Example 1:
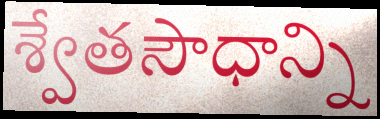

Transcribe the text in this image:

శ్వేతసౌధాన్ని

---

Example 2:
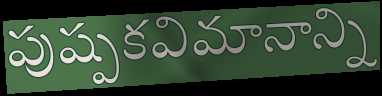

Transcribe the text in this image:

పుష్పకవిమానాన్ని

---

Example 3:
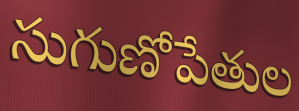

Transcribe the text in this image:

సుగుణోపేతుల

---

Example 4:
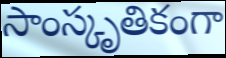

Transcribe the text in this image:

సాంస్కృతికంగా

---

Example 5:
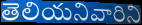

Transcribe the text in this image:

తెలియనివారిని